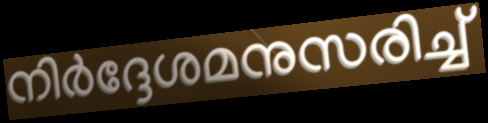
നിർദ്ദേശമനുസരിച്ച്